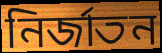
নিৰ্জাতন